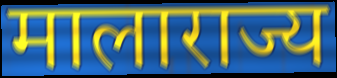
मालाराज्य